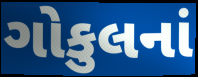
ગોકુલનાં